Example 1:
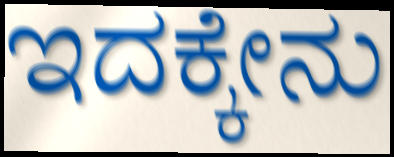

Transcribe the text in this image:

ಇದಕ್ಕೇನು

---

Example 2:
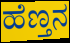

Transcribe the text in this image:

ಹೆಣ್ತನ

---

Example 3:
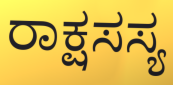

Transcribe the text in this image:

ರಾಕ್ಷಸಸ್ಯ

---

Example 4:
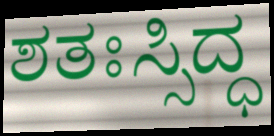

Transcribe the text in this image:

ಶತಃಸ್ಸಿದ್ಧ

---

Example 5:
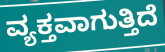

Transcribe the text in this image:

ವ್ಯಕ್ತವಾಗುತ್ತಿದೆ